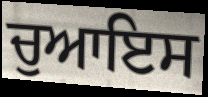
ਚੁਆਇਸ